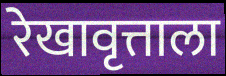
रेखावृत्ताला